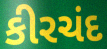
કીરચંદ